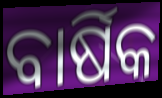
ବାର୍ଷିକ